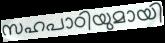
സഹപാഠിയുമായി